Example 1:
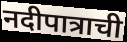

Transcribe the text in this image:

नदीपात्राची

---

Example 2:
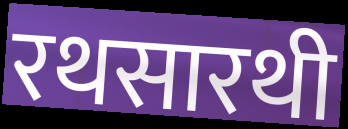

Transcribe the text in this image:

रथसारथी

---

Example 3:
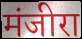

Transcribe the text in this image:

मंजीरा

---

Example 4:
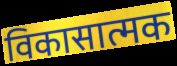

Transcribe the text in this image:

विकासात्मक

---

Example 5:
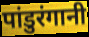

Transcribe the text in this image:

पांडुरंगानी